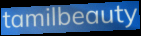
tamilbeauty